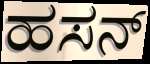
ಹಸನ್